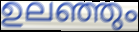
ഉലഞ്ഞും